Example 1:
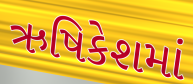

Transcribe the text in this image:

ઋષિકેશમાં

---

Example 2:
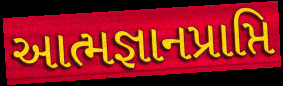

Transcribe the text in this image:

આત્મજ્ઞાનપ્રાપ્તિ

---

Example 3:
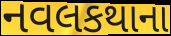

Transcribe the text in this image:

નવલકથાના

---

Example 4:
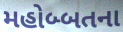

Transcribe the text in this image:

મહોબ્બતના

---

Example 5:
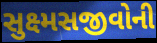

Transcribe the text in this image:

સુક્ષ્મસજીવોની